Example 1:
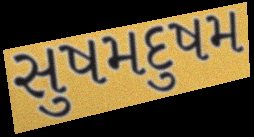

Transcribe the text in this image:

સુષમદુષમ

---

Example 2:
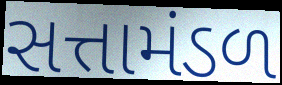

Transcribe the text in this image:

સત્તામંડળ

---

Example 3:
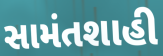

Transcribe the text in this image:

સામંતશાહી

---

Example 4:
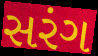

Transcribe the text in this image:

સરંગ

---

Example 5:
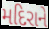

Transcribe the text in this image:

મદિરાને